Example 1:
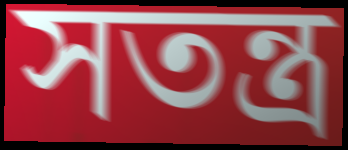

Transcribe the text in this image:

সতন্ত্র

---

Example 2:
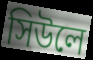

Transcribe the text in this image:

সিউলে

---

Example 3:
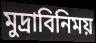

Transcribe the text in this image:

মুদ্রাবিনিময়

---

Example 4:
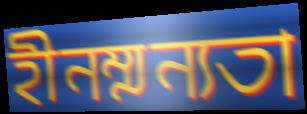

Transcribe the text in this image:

হীনম্মন্যতা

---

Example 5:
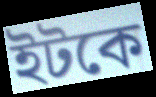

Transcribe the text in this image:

ইটকে